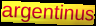
argentinus